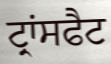
ਟ੍ਰਾਂਸਫੈਟ